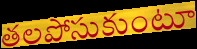
తలపోసుకుంటూ